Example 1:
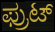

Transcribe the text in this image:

ಫ್ರುಟ್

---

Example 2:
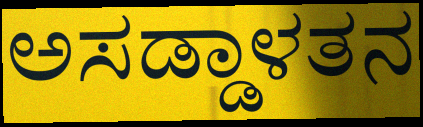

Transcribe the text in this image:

ಅಸಡ್ಡಾಳತನ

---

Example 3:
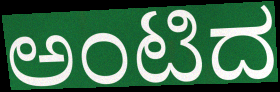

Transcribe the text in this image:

ಅಂಟಿದ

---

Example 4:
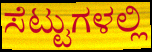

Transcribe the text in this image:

ಸೆಟ್ಟುಗಳಲ್ಲಿ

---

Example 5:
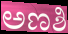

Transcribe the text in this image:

ಅಣಶಿ